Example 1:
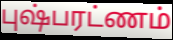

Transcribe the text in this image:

புஷ்பரட்ணம்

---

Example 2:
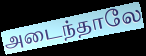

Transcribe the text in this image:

அடைந்தாலே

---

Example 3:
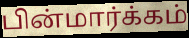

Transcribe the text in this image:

பின்மார்க்கம்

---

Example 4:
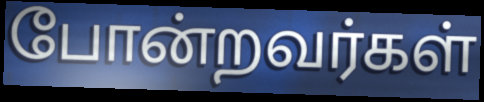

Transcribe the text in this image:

போன்றவர்கள்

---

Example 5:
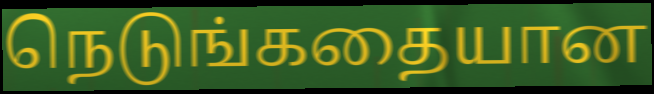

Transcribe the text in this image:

நெடுங்கதையான